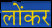
लोंकर